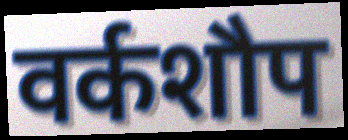
वर्कशौप